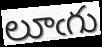
లూఁగు